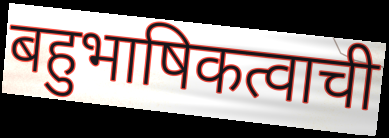
बहुभाषिकत्वाची